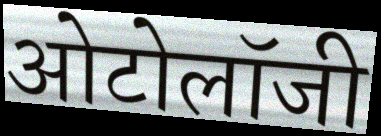
ओटोलॉजी